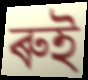
ৰুই